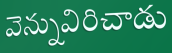
వెన్నువిరిచాడు